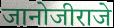
जानोजीराजे